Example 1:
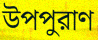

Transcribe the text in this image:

উপপুরাণ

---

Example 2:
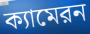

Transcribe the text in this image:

ক্যামেরন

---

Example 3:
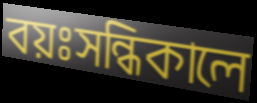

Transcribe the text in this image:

বয়ঃসন্ধিকালে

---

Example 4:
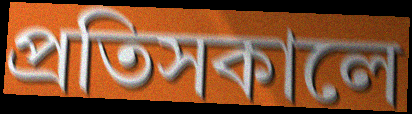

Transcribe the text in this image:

প্রতিসকালে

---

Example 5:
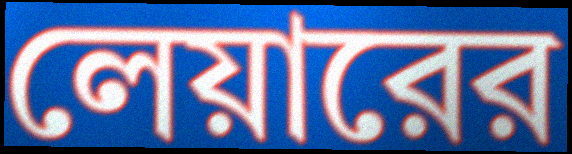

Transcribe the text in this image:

লেয়ারের